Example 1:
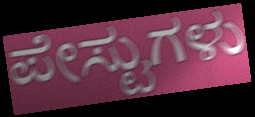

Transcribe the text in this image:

ಪೇಸ್ಟುಗಳು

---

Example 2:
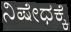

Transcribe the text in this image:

ನಿಷೇಧಕ್ಕೆ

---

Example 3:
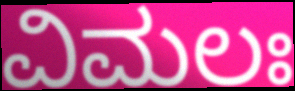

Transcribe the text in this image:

ವಿಮಲಃ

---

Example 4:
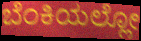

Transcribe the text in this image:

ಬೆಂಕಿಯಲ್ಲೋ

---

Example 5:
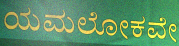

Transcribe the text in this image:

ಯಮಲೋಕವೇ